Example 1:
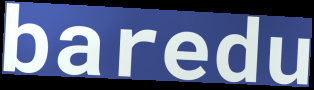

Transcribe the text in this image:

baredu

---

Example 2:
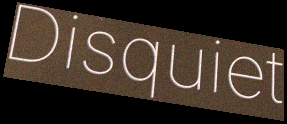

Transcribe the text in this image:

Disquiet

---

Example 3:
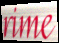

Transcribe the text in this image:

rime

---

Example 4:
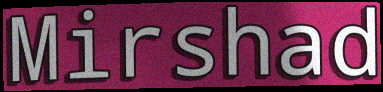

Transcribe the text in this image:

Mirshad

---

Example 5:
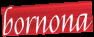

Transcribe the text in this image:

bornona